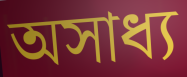
অসাধ্য